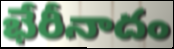
భేరీనాదం